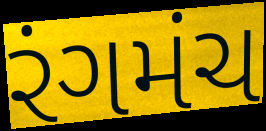
રંગમંચ